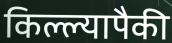
किल्ल्यापैकी